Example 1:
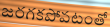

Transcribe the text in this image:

జరగకపోవటంతో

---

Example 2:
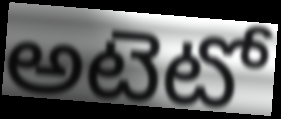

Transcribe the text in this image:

అటెటో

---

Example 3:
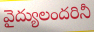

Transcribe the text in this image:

వైద్యులందరినీ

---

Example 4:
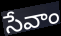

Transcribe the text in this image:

సేవాం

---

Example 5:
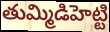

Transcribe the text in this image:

తుమ్మిడిహెట్టి